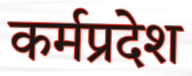
कर्मप्रदेश